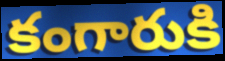
కంగారుకి